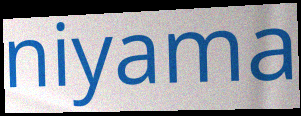
niyama